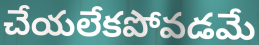
చేయలేకపోవడమే